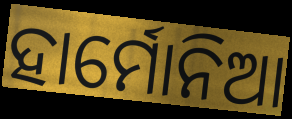
ହାର୍ମୋନିଆ